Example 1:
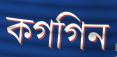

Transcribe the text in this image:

কগগিন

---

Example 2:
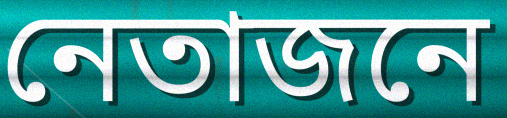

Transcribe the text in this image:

নেতাজনে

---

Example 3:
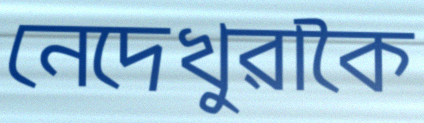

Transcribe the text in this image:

নেদেখুৱাকৈ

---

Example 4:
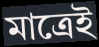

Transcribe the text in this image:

মাত্ৰেই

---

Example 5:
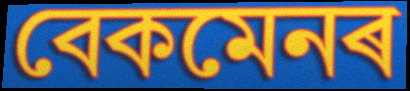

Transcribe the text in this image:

বেকমেনৰ